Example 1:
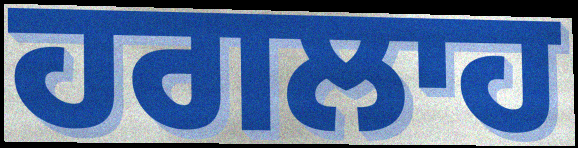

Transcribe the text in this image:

ਹਗਲਾਹ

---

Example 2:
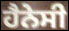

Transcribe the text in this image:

ਹੈਨੇਸੀ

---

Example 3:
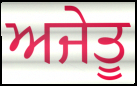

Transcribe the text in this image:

ਅਜੇਤੂ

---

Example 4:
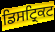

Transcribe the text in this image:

ਡਿਸਟ੍ਰਿਕਟ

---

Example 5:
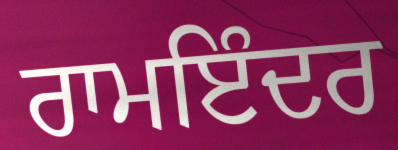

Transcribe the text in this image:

ਰਾਮਇੰਦਰ